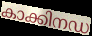
കാക്കിനഡ